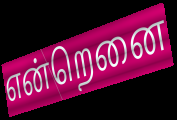
என்றெனை